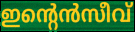
ഇന്റെൻസീവ്